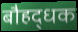
बौहद्धक